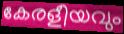
കേരളീയവും